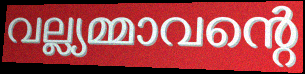
വല്ല്യമ്മാവന്റെ